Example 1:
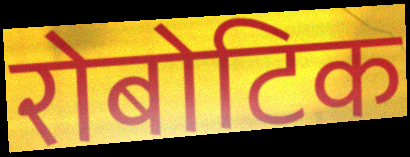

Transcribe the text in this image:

रोबोटिक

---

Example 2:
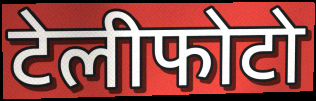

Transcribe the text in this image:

टेलीफोटो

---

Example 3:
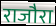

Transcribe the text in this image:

राजौरा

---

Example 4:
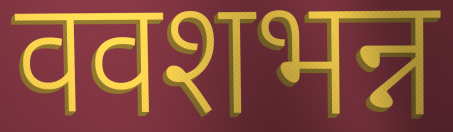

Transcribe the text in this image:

ववशभन्न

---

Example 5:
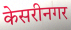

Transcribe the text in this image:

केसरीनगर